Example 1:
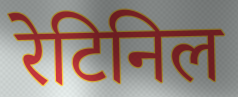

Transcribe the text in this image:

रेटिनिल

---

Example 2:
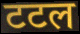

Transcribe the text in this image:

टटल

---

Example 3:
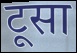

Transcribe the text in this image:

टूसा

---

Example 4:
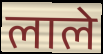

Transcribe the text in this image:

लाले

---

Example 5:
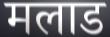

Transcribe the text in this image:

मलाड